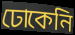
ঢোকেনি